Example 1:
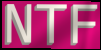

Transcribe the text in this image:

NTF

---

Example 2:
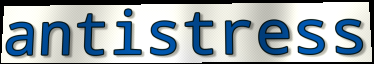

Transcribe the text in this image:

antistress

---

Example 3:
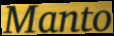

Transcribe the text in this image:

Manto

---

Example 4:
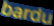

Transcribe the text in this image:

bardu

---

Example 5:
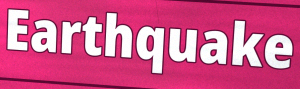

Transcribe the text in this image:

Earthquake